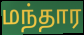
மந்தார